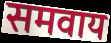
समवाय